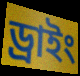
ড্রাইং